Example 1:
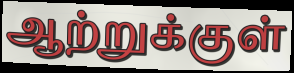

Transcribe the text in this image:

ஆற்றுக்குள்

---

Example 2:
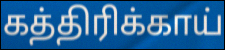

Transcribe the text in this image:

கத்திரிக்காய்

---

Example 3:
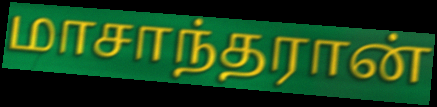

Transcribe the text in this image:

மாசாந்தரான்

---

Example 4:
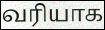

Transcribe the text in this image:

வரியாக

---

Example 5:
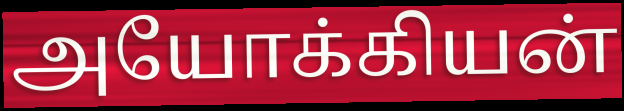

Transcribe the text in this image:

அயோக்கியன்